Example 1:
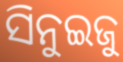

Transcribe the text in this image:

ସିନୁଇଜୁ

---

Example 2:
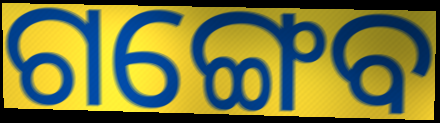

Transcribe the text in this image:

ଗଙ୍ଗେବ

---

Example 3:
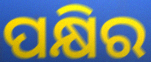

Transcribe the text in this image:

ପକ୍ଷିର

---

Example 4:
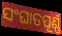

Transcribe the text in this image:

ସଂଘାତପୂର୍ଣ୍ଣ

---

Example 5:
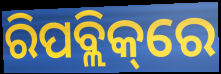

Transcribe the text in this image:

ରିପବ୍ଲିକ୍‌ରେ